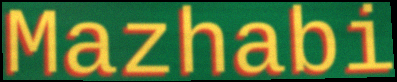
Mazhabi